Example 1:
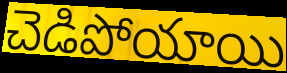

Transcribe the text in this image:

చెడిపోయాయి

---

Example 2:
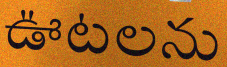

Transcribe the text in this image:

ఊటలను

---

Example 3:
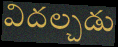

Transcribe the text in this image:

విదల్చడు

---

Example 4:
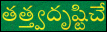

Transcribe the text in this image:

తత్త్వదృష్టిచే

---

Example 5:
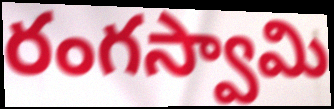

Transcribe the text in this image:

రంగస్వామి